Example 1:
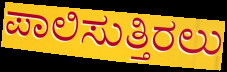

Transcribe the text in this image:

ಪಾಲಿಸುತ್ತಿರಲು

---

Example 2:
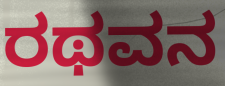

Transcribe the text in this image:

ರಥವನ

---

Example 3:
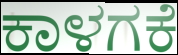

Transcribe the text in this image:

ಕಾಳಗಕೆ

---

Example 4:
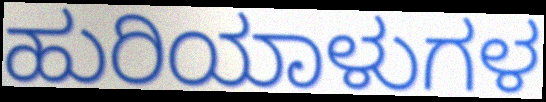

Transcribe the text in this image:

ಹುರಿಯಾಳುಗಳ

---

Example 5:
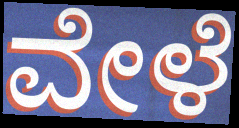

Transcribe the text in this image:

ವೇಳೆ